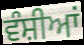
ਵੰਸ਼ੀਆਂ